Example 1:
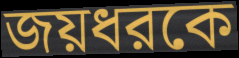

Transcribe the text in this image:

জয়ধরকে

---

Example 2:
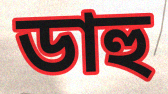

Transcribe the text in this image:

ডাহু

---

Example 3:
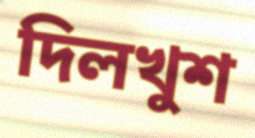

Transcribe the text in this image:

দিলখুশ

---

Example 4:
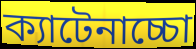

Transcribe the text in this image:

ক্যাটেনাচ্চো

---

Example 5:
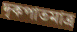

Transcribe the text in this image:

দৃকপাতমাত্র